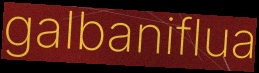
galbaniflua